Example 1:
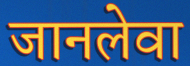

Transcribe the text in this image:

जानलेवा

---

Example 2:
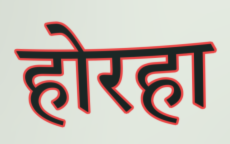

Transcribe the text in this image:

होरहा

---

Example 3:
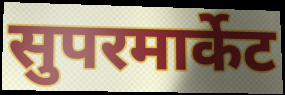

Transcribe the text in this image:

सुपरमार्केट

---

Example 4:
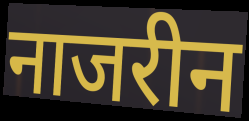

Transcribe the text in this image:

नाजरीन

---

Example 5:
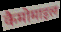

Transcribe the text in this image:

कैमोमाइल